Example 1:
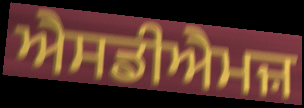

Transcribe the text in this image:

ਐਸਡੀਐਮਜ਼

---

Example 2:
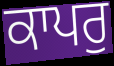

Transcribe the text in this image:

ਕਾਪਰੁ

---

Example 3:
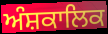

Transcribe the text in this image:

ਅੰਸ਼ਕਾਲਿਕ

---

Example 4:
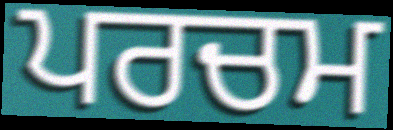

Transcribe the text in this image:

ਪਰਚਮ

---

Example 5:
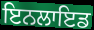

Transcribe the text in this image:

ਇਨਲਾਇਡ